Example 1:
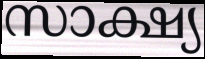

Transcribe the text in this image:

സാക്ഷ്യ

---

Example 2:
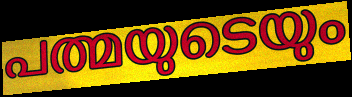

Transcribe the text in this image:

പത്മയുടെയും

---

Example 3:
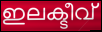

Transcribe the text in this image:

ഇലക്ടീവ്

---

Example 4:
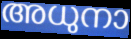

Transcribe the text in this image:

അധുനാ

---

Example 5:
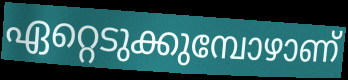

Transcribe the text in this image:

ഏറ്റെടുക്കുമ്പോഴാണ്